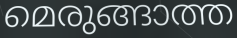
മെരുങ്ങാത്ത